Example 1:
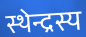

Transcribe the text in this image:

स्थेन्द्रस्य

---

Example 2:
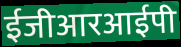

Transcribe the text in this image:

ईजीआरआईपी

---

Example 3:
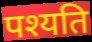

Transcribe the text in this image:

पश्यति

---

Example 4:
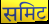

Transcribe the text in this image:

समिट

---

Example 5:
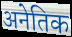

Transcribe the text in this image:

अनेतिक